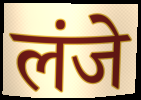
लंजे